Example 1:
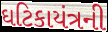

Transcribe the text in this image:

ઘટિકાયંત્રની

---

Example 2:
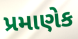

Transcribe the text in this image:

પ્રમાણેક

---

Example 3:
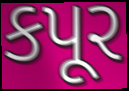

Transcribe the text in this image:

કપૂર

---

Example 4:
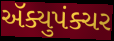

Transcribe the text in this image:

ઍક્યુપંક્ચર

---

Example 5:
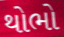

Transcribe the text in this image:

થોભો